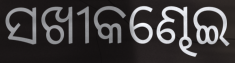
ସଖୀକଣ୍ଢେଇ